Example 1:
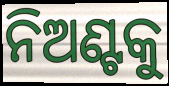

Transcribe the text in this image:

ନିଅଣ୍ଟକୁ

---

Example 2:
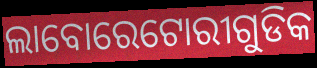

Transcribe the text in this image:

ଲାବୋରେଟୋରୀଗୁଡିକ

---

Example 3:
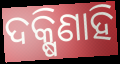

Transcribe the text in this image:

ଦକ୍ଷିଣାହି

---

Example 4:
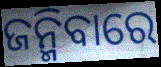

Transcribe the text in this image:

ଜନ୍ମିବାରେ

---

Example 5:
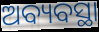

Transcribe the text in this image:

ଅବ୍ୟବସ୍ଥା